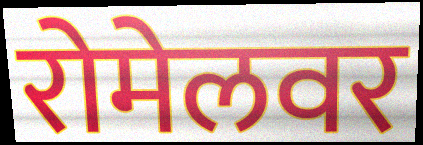
रोमेलवर